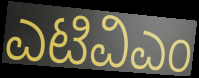
ಎಟಿವಿಎಂ